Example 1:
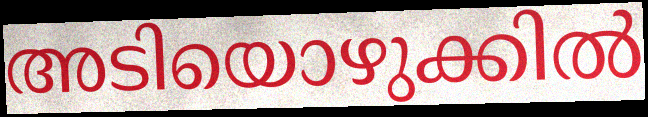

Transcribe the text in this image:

അടിയൊഴുക്കിൽ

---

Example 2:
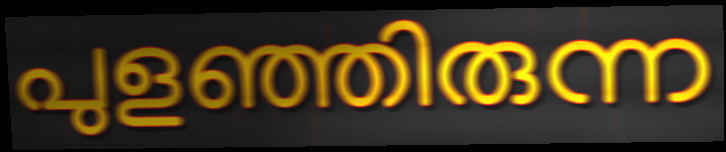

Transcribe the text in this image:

പുളഞ്ഞിരുന്ന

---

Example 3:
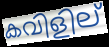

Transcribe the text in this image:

കവിളില്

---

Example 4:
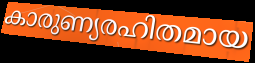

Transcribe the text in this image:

കാരുണ്യരഹിതമായ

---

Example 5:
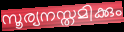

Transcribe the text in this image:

സൂര്യനസ്തമിക്കും